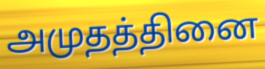
அமுதத்தினை